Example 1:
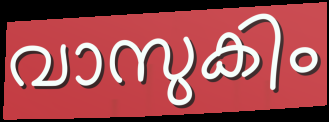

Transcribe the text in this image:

വാസുകിം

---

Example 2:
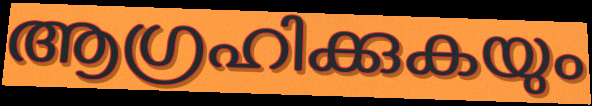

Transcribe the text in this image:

ആഗ്രഹിക്കുകയും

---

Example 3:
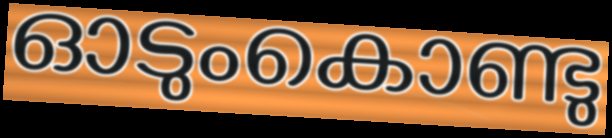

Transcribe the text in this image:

ഓടുംകൊണ്ടു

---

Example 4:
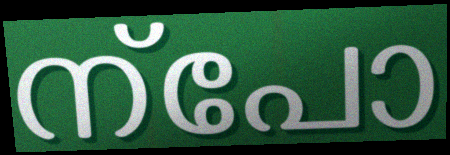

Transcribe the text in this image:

ന്പോ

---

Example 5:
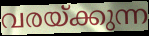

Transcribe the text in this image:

വരയ്ക്കുന്ന